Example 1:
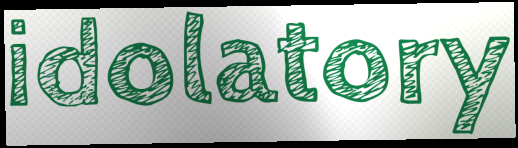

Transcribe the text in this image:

idolatory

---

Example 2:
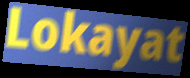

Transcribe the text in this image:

Lokayat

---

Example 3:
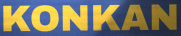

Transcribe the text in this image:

KONKAN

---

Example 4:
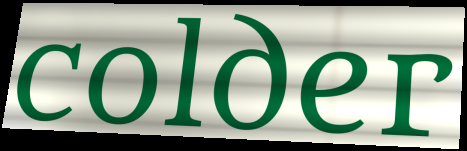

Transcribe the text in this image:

colder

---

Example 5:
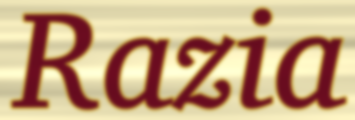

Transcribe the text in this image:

Razia